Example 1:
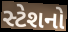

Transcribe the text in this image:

સ્ટેશનો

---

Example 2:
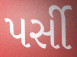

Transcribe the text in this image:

પર્સી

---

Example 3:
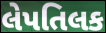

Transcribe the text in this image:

લેપતિલક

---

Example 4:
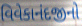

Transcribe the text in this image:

વિવેકાનંદજીનો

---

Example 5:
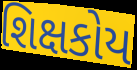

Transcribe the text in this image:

શિક્ષકોય